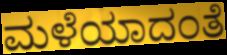
ಮಳೆಯಾದಂತೆ